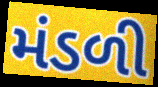
મંડળી